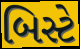
બિસ્ટે